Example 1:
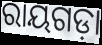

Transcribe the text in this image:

ରାୟଗଡ଼ା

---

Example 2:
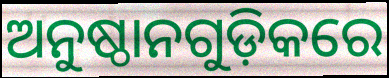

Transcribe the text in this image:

ଅନୁଷ୍ଠାନଗୁଡ଼ିକରେ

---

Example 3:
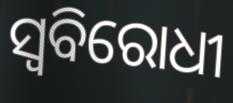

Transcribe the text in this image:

ସ୍ୱବିରୋଧୀ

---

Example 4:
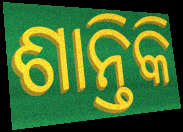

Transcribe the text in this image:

ଶାନ୍ତିକି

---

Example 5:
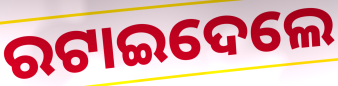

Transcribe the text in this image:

ରଟାଇଦେଲେ